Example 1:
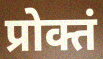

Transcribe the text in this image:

प्रोक्तं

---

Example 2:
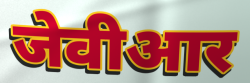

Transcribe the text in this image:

जेवीआर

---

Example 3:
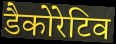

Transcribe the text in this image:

डैकोरेटिव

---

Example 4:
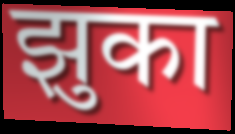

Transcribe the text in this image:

झुका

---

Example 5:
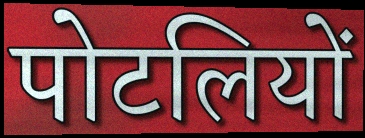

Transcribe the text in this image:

पोटलियों